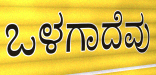
ಒಳಗಾದೆವು